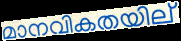
മാനവികതയില്